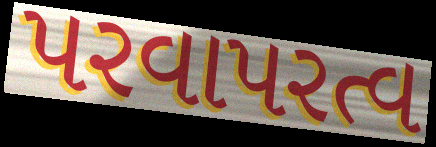
પરવાપરત્વ